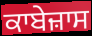
ਕਾਬੇਜ਼ਾਸ